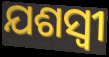
ଯଶସ୍ବୀ